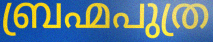
ബ്രഹ്മപുത്ര